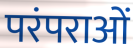
परंपराओं